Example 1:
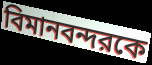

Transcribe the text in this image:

বিমানবন্দরকে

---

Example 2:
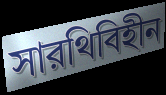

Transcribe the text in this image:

সারথিবিহীন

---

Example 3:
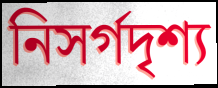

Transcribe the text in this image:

নিসর্গদৃশ্য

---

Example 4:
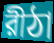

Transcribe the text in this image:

রীঠা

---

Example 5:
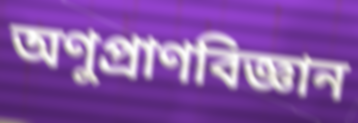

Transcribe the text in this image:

অণুপ্রাণবিজ্ঞান